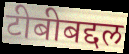
टीबीबद्दल